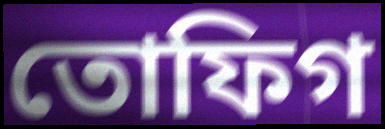
তোফিগ